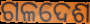
ଗଳଦେଶ